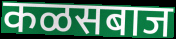
कळसबाज